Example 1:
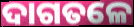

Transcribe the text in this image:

ଦାଗତଳେ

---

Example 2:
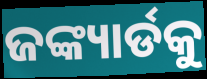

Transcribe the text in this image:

ଜଙ୍କ୍ୟାର୍ଡକୁ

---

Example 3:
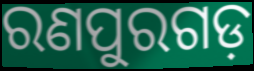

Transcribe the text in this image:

ରଣପୁରଗଡ଼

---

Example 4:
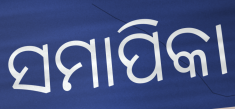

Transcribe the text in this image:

ସମାପିକା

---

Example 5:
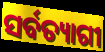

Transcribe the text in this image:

ସର୍ବତ୍ୟାଗୀ